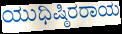
ಯುಧಿಷ್ಠಿರರಾಯ